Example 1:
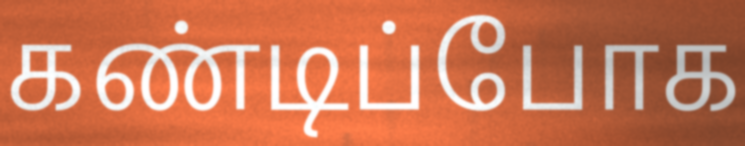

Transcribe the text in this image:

கண்டிப்போக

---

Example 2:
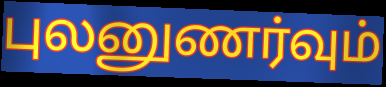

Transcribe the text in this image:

புலனுணர்வும்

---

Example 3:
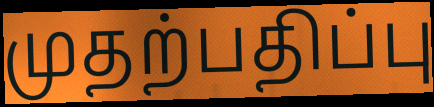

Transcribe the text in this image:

முதற்பதிப்பு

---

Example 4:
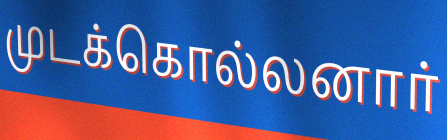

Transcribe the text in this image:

முடக்கொல்லனார்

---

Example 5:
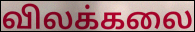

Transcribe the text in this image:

விலக்கலை